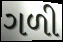
ગળી